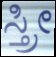
ಸ್ತ್ರೀ